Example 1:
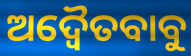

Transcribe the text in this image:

ଅଦ୍ୱୈତବାବୁ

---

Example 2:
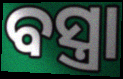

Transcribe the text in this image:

ବସ୍ତ୍ରା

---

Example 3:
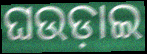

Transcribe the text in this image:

ଘଉଡ଼ାଇ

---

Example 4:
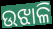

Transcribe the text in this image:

ଉଝାଳି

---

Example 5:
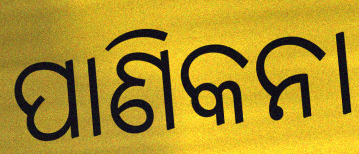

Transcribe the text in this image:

ପାଣିକନା